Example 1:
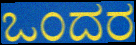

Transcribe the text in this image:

ಒಂದರ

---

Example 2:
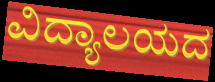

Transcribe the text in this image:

ವಿದ್ಯಾಲಯದ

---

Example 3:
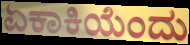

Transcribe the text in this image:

ಏಕಾಕಿಯೆಂದು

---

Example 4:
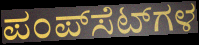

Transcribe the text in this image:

ಪಂಪ್‌ಸೆಟ್‌ಗಳ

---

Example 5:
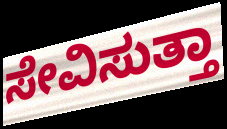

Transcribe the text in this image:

ಸೇವಿಸುತ್ತಾ